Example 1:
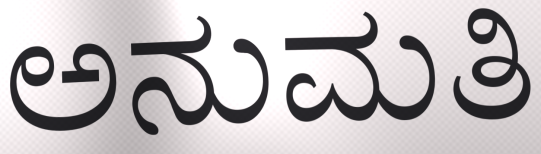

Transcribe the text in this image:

ಅನುಮತಿ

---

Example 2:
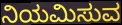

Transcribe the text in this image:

ನಿಯಮಿಸುವ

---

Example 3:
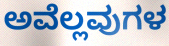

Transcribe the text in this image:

ಅವೆಲ್ಲವುಗಳ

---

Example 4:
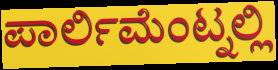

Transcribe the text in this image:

ಪಾರ್ಲಿಮೆಂಟ್ನಲ್ಲಿ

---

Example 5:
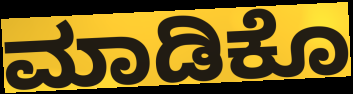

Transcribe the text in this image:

ಮಾಡಿಕೊ